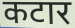
कटार